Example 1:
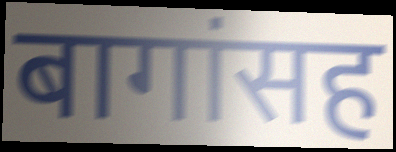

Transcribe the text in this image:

बागांसह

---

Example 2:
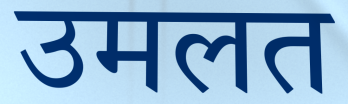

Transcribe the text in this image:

उमलत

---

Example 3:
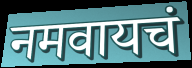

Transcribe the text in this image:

नमवायचं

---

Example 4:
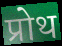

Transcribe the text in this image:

प्रोथ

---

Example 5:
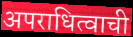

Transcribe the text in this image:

अपराधित्वाची